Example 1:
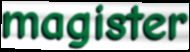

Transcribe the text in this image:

magister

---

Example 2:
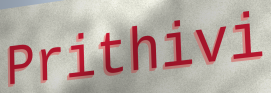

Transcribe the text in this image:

Prithivi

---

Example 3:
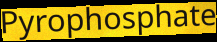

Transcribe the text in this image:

Pyrophosphate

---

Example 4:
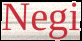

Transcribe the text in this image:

Negi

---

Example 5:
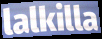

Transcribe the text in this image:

lalkilla